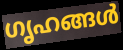
ഗൃഹങ്ങൾ